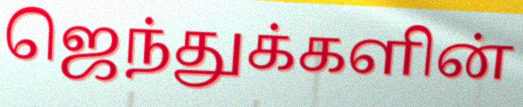
ஜெந்துக்களின்